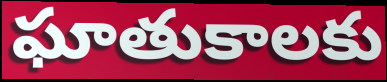
ఘాతుకాలకు